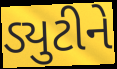
ડ્યુટીને